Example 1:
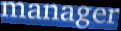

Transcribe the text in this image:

manager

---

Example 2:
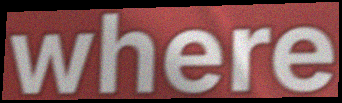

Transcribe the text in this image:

where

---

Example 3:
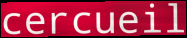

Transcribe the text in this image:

cercueil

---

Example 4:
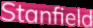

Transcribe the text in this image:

Stanfield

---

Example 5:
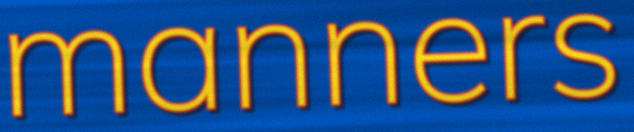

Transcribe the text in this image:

manners